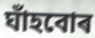
ঘাঁহবোৰ